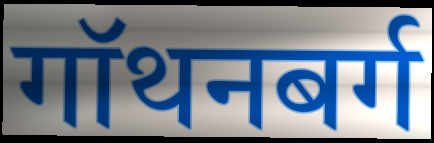
गॉथनबर्ग